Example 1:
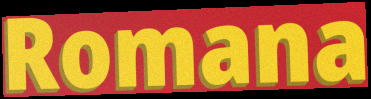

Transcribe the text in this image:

Romana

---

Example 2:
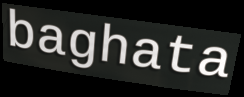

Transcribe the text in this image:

baghata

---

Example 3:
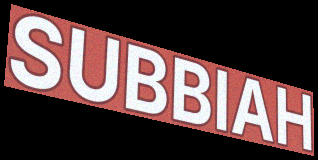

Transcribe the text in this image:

SUBBIAH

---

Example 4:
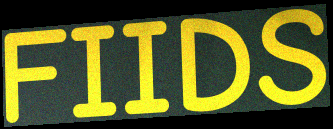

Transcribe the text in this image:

FIIDS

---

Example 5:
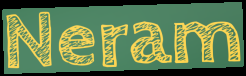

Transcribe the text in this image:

Neram